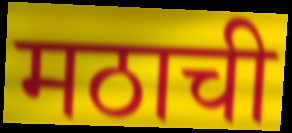
मठाची